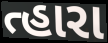
ત્હારા